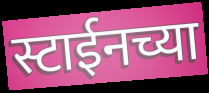
स्टाईनच्या